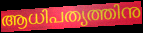
ആധിപത്യത്തിനു